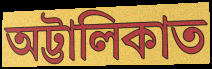
অট্টালিকাত